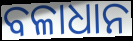
ବଳାଧାନ